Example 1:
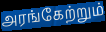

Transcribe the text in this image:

அரங்கேற்றும்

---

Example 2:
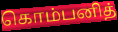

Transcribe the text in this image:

கொம்பனித்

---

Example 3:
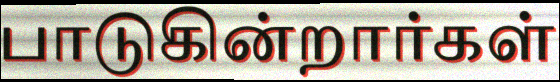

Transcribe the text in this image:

பாடுகின்றார்கள்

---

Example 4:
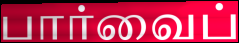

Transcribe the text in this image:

பார்வைப்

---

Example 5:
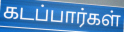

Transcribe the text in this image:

கடப்பார்கள்